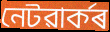
নেটৱাৰ্কৰ